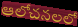
ఆలోచనలలో